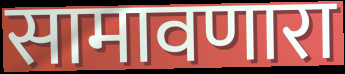
सामावणारा